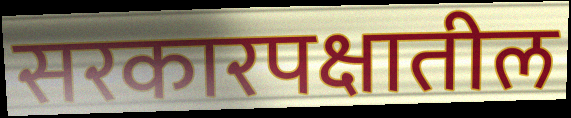
सरकारपक्षातील